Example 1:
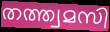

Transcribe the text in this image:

തത്ത്വമസി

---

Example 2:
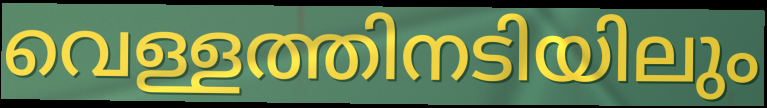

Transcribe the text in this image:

വെള്ളത്തിനടിയിലും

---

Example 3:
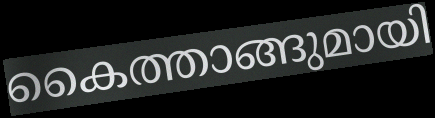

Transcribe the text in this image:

കൈത്താങ്ങുമായി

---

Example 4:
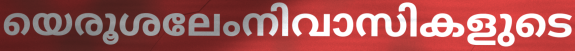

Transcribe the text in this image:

യെരൂശലേംനിവാസികളുടെ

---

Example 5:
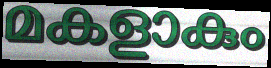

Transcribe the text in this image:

മകളാകും